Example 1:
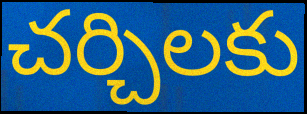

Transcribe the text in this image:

చర్చిలకు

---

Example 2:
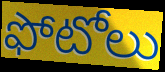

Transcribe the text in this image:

ఫోటోలు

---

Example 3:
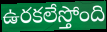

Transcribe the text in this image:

ఉరకలేస్తోంది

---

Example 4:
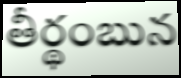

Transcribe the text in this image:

తీర్థంబున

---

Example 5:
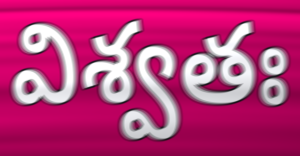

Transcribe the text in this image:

విశ్వతః